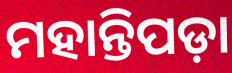
ମହାନ୍ତିପଡ଼ା